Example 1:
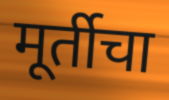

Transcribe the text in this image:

मूर्तीचा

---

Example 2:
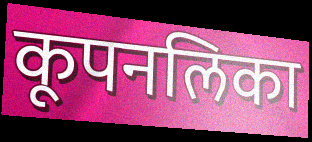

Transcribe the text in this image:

कूपनलिका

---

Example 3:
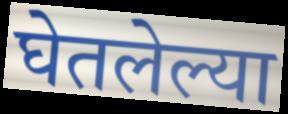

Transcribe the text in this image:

घेतलेल्या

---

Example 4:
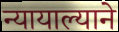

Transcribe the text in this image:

न्यायाल्याने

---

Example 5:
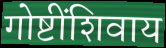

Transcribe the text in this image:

गोष्टींशिवाय